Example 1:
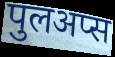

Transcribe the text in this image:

पुलअप्स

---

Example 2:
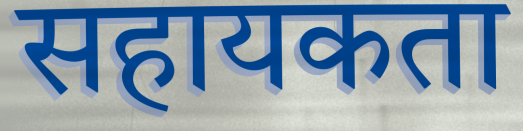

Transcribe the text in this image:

सहायकता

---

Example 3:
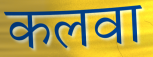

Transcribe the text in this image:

कलवा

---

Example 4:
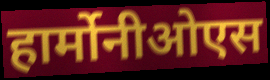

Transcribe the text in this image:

हार्मोनीओएस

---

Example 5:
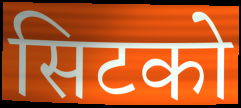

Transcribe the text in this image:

सिटको